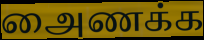
அைணக்க